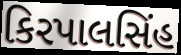
કિરપાલસિંહ